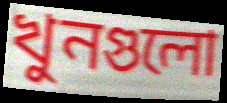
খুনগুলো